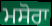
ਮਸੋਰਾ